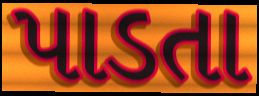
પાડતા